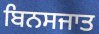
ਬਿਨਸਜਾਤ